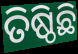
ତିଷ୍ଠିଛି